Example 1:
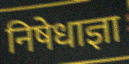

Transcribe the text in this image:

निषेधाज्ञा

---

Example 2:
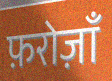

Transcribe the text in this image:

फ़रोज़ाँ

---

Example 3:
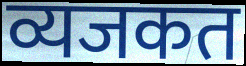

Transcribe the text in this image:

व्यजकत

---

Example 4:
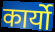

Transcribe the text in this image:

कार्यो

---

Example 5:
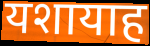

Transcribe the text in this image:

यशायाह